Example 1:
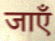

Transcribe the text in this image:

जाएँ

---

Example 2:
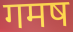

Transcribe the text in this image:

गमष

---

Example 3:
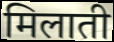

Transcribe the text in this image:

मिलाती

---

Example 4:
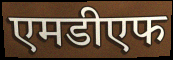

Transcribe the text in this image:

एमडीएफ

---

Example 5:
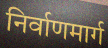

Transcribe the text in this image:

निर्वाणमार्ग